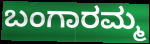
ಬಂಗಾರಮ್ಮ